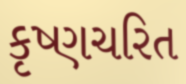
કૃષ્ણચરિત